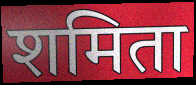
शमिता